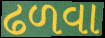
ઢળવા